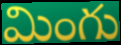
మింగు